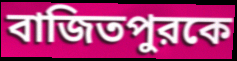
বাজিতপুরকে